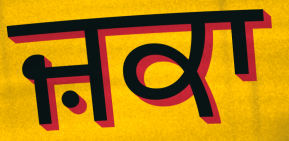
ਜ਼ਕਾ